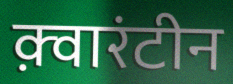
क़्वारंटीन